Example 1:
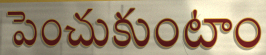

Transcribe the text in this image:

పెంచుకుంటాం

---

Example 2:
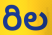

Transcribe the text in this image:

రిల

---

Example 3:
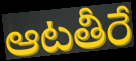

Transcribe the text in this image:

ఆటతీరే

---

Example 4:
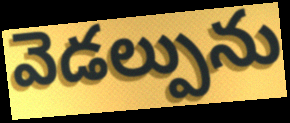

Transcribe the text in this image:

వెడల్పును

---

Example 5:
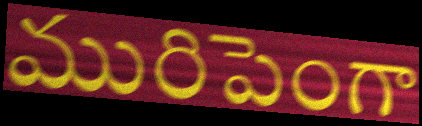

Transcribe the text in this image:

మురిపెంగా